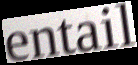
entail